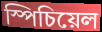
স্পিচিয়েল